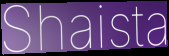
Shaista